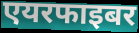
एयरफाइबर